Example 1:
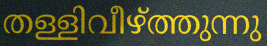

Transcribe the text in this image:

തള്ളിവീഴ്ത്തുന്നു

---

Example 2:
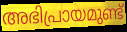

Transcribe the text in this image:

അഭിപ്രായമുണ്ട്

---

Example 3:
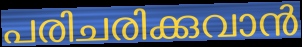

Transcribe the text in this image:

പരിചരിക്കുവാൻ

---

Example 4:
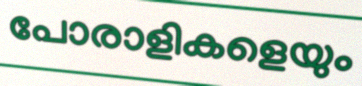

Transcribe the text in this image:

പോരാളികളെയും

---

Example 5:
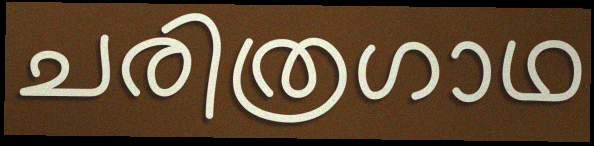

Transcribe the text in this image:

ചരിത്രഗാഥ